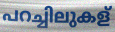
പറച്ചിലുകള്